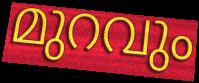
മുറവും